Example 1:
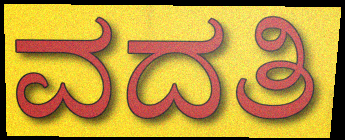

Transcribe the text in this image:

ವದತಿ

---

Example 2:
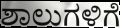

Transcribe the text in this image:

ಶಾಲುಗಳಿಗೆ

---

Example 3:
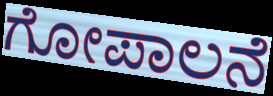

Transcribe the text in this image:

ಗೋಪಾಲನೆ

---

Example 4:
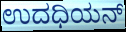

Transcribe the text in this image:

ಉದಧಿಯನ್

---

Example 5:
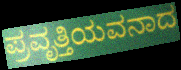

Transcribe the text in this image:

ಪ್ರವೃತ್ತಿಯವನಾದ